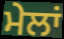
ਮੇਲਾਂ